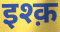
इश्क़